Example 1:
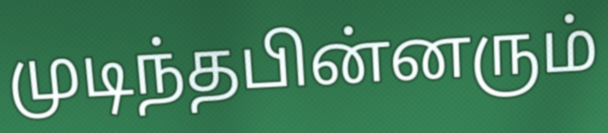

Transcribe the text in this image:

முடிந்தபின்னரும்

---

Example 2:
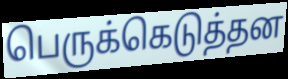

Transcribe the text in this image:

பெருக்கெடுத்தன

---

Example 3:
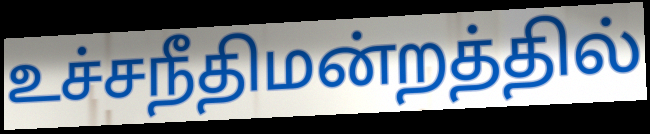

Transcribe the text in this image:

உச்சநீதிமன்றத்தில்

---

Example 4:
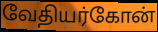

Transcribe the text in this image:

வேதியர்கோன்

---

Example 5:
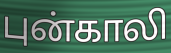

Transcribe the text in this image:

புன்காலி